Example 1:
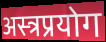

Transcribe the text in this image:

अस्त्रप्रयोग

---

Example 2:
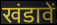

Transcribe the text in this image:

खंडावें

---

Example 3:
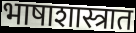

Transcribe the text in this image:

भाषाशास्त्रात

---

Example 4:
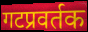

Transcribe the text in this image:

गटप्रवर्तक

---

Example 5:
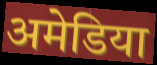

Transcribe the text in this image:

अमेडिया